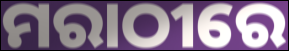
ମରାଠୀରେ